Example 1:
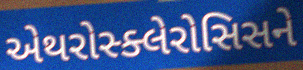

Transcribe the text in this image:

એથરોસ્ક્લેરોસિસને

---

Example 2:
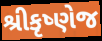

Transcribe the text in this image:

શ્રીકૃષ્ણેજ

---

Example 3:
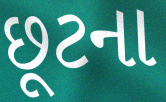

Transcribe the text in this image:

છૂટના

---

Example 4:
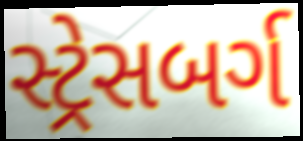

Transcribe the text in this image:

સ્ટ્રેસબર્ગ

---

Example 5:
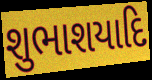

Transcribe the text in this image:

શુભાશયાદિ